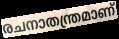
രചനാതന്ത്രമാണ്